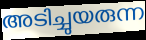
അടിച്ചുയരുന്ന